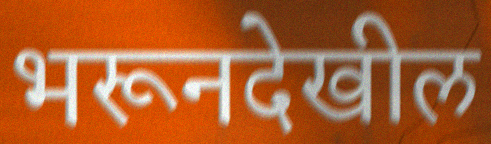
भरूनदेखील